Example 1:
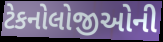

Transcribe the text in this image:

ટેકનોલોજીઓની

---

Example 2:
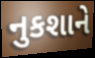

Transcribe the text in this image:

નુકશાને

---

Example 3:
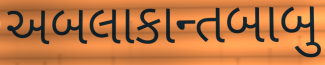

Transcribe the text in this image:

અબલાકાન્તબાબુ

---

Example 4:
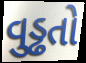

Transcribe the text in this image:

વુડ્ઢતો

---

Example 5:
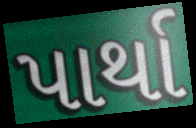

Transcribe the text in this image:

પાર્થા